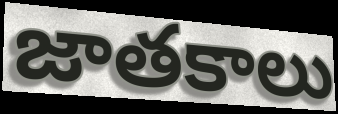
జాతకాలు